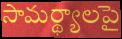
సామర్థ్యాలపై